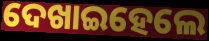
ଦେଖାଇହେଲେ